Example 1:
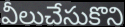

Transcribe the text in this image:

వీలుచేసుకొని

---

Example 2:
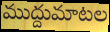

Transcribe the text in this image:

ముద్దుమాటల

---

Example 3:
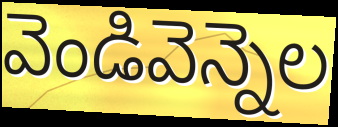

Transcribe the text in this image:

వెండివెన్నెల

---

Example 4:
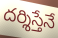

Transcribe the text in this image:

దర్శిస్తేనే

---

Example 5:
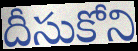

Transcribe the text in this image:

దీసుకోని